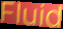
Fluid